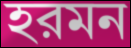
হরমন